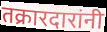
तक्रारदारांनी